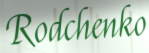
Rodchenko